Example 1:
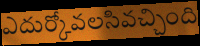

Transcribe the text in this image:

ఎదుర్కోవలసివచ్చింది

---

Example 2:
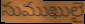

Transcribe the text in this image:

సుముఖులై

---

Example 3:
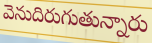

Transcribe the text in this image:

వెనుదిరుగుతున్నారు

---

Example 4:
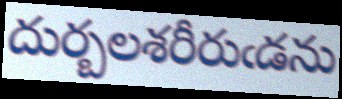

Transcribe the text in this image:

దుర్బలశరీరుఁడను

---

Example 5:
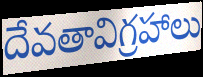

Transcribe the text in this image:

దేవతావిగ్రహాలు